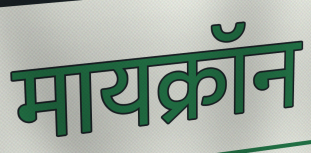
मायक्रॉन